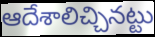
ఆదేశాలిచ్చినట్టు